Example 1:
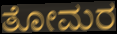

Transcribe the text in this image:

ತೋಮರ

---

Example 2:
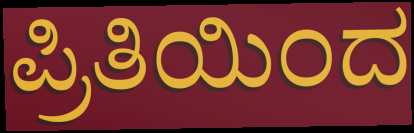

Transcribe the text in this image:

ಪ್ರಿತಿಯಿಂದ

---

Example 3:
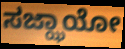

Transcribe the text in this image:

ಸಜ್ಝಾಯೋ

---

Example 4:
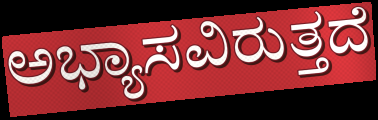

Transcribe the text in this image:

ಅಭ್ಯಾಸವಿರುತ್ತದೆ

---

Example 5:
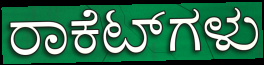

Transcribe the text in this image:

ರಾಕೆಟ್‌ಗಳು